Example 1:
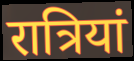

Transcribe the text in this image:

रात्रियां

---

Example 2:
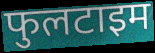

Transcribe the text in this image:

फुलटाइम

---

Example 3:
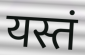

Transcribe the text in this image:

यस्तं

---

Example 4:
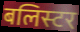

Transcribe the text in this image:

बलिस्टर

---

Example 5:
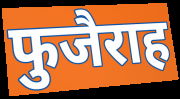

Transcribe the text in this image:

फुजैराह